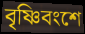
বৃষ্ণিবংশে